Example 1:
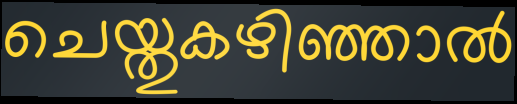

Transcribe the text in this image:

ചെയ്തുകഴിഞ്ഞാൽ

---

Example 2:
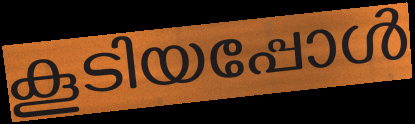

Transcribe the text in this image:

കൂടിയപ്പോൾ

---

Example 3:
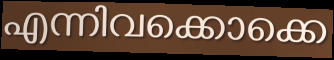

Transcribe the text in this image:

എന്നിവക്കൊക്കെ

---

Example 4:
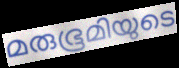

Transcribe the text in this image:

മരുഭൂമിയുടെ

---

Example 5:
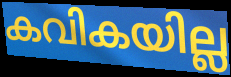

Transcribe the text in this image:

കവികയില്ല